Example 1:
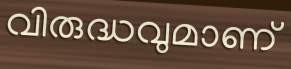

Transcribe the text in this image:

വിരുദ്ധവുമാണ്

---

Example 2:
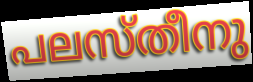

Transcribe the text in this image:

പലസ്തീനു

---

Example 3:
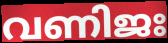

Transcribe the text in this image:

വണിജഃ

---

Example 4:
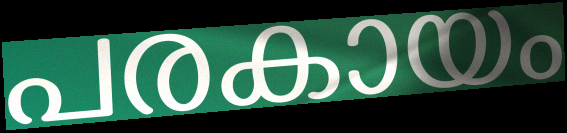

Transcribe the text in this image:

പരകായം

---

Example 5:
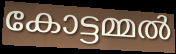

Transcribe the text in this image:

കോട്ടമ്മൽ